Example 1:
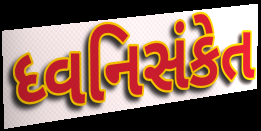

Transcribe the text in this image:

ધ્વનિસંકેત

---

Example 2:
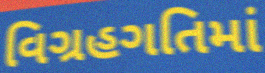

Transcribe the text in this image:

વિગ્રહગતિમાં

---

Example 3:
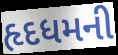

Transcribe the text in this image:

હૃદધમની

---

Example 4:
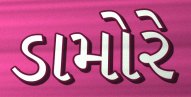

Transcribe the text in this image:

ડામોરે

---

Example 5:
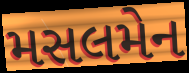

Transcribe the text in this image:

મસલમેન